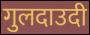
गुलदाउदी